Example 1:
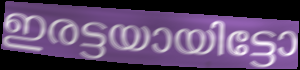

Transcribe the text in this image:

ഇരട്ടയായിട്ടോ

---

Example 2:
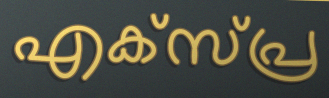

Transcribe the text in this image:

എക്സ്പ്ര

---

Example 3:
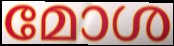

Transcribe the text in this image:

മോശ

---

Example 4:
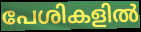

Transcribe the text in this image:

പേശികളിൽ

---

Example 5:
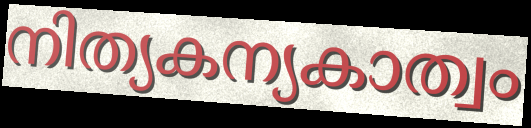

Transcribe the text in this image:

നിത്യകന്യകാത്വം